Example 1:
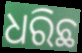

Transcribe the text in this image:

ଧରିଛ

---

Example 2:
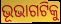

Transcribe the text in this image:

ଭୂଭାଗଟିକୁ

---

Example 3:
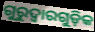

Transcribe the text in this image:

ଗୁରୁଦ୍ବାରଗୁଡ଼ିକ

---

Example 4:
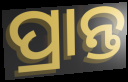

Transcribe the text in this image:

ପ୍ରାନ୍ତ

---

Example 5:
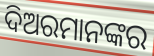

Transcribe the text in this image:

ଦିଅରମାନଙ୍କର